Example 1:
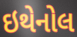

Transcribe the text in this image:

ઇથેનોલ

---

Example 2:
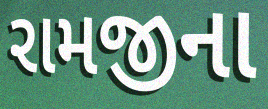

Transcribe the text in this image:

રામજીના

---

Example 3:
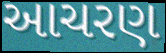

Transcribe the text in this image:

આચરણ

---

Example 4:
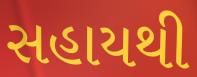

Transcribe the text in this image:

સહાયથી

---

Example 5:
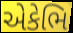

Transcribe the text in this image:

એકેભિ